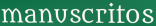
manuscritos